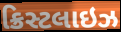
ક્રિસ્ટલાઇઝ